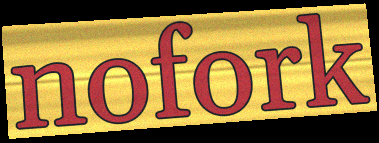
nofork